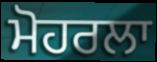
ਮੋਹਰਲਾ